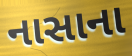
નાસાના